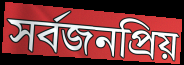
সর্বজনপ্রিয়